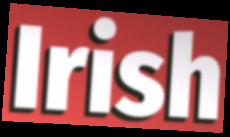
Irish